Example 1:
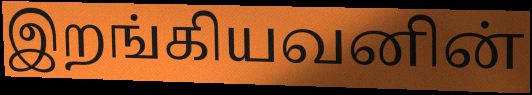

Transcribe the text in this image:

இறங்கியவனின்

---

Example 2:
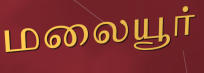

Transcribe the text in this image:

மலையூர்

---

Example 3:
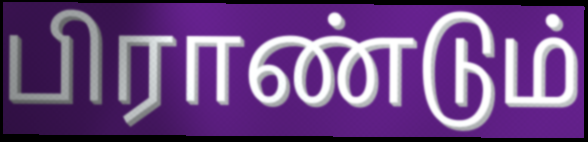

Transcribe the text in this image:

பிராண்டும்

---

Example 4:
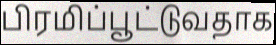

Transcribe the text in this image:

பிரமிப்பூட்டுவதாக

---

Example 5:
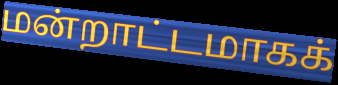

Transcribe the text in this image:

மன்றாட்டமாகக்